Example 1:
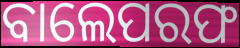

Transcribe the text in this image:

ବାଲେପରଫ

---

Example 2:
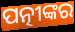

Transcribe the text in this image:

ପତ୍ନୀଙ୍କର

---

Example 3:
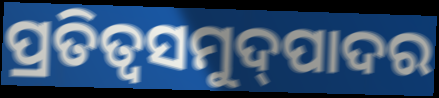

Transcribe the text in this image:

ପ୍ରତିତ୍ଵସମୁଦ୍‌ପାଦର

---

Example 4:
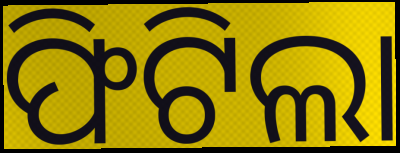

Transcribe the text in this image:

ଫିଟିଲା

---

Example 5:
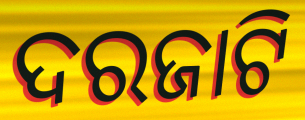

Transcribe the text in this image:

ଦରଜାଟି